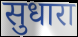
सुधारा